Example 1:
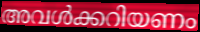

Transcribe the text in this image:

അവൾക്കറിയണം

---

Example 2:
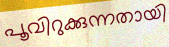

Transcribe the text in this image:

പൂവിറുക്കുന്നതായി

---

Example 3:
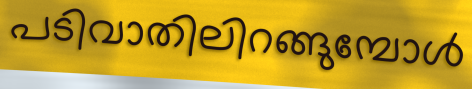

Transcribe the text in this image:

പടിവാതിലിറങ്ങുമ്പോൾ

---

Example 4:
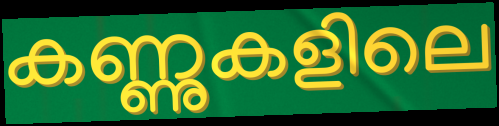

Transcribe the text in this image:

കണ്ണുകളിലെ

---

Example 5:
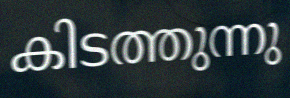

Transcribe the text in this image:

കിടത്തുന്നു